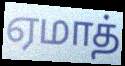
ஏமாத்